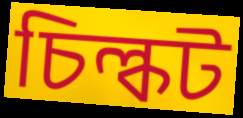
চিল্কট